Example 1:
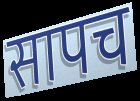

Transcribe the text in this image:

सापच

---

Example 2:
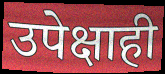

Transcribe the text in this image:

उपेक्षाही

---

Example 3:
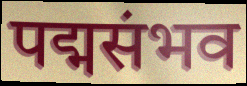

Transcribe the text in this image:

पद्मसंभव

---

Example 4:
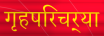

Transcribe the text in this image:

गृहपरिचर्या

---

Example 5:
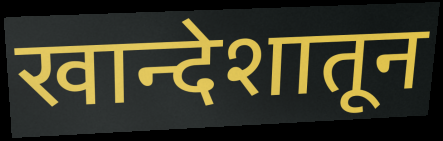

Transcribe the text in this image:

खान्देशातून